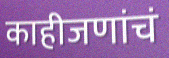
काहीजणांचं